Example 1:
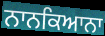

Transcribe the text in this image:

ਨਾਨਕਿਆਨਾ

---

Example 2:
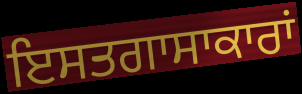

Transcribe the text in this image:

ਇਸਤਗਾਸਾਕਾਰਾਂ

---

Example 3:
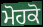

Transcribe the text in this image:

ਮੋਹਕੋ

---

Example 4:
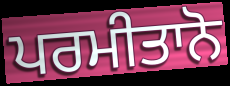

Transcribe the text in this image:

ਪਰਮੀਤਾਨੋ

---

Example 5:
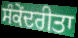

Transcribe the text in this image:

ਸੰਕੇਂਦਰੀਤਾ